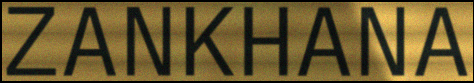
ZANKHANA